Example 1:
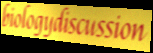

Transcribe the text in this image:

biologydiscussion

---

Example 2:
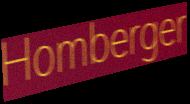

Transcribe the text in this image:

Homberger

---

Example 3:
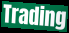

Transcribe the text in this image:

Trading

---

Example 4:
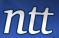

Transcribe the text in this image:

ntt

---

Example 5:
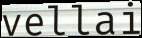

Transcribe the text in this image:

vellai